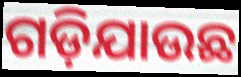
ଗଡ଼ିଯାଉଛ